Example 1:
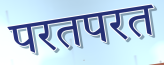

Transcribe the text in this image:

परतपरत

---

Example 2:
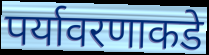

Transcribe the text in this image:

पर्यावरणाकडे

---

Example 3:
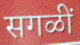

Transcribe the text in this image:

सगळीं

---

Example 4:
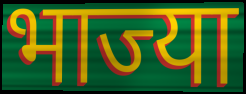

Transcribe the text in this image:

भाज्या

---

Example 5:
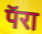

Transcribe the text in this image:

पॅरा